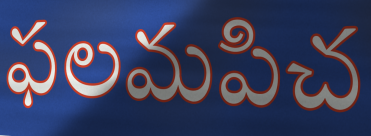
ఫలమపిచ